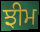
ਝੀਮ